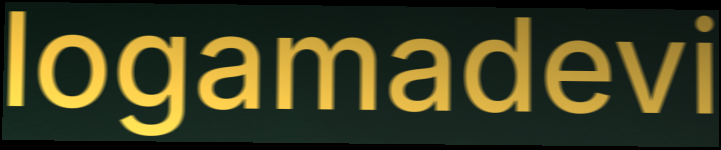
logamadevi